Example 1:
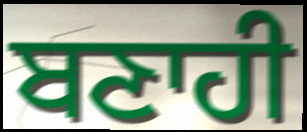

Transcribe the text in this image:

ਬਣਾਹੀ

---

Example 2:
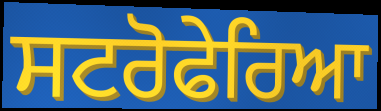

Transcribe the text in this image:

ਸਟਰੋਫੇਰਿਆ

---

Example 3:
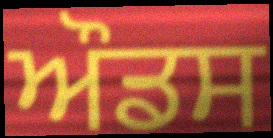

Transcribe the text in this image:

ਔਡਸ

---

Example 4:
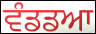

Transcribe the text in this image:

ਵੰਡਡਆ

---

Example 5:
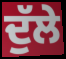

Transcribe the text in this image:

ਦੁੱਲੇ